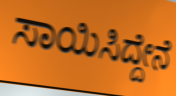
ಸಾಯಿಸಿದ್ದೇನೆ